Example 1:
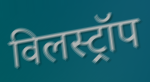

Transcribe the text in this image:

विलस्ट्रॉप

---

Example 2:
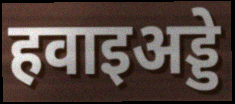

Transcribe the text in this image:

हवाइअड्डे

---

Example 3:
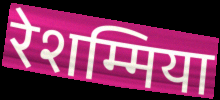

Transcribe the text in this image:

रेशम्मिया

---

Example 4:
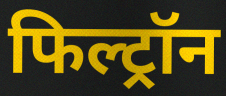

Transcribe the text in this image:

फिल्ट्रॉन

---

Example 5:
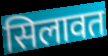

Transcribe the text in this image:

सिलावत